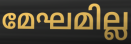
മേഘമില്ല